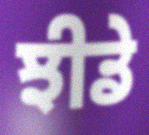
ਝੀਡੇ